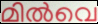
മിൽവെ